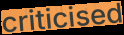
criticised